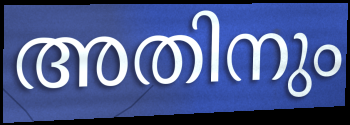
അതിനും